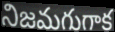
నిజమగుగాక